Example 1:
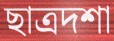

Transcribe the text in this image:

ছাত্রদশা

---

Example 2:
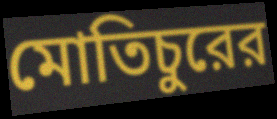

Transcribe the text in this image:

মোতিচুরের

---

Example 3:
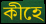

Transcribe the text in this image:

কীহে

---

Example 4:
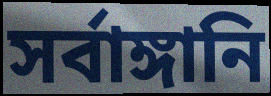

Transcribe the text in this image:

সর্বাঙ্গানি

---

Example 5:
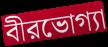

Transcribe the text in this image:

বীরভোগ্যা